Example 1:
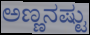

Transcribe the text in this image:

ಅಣ್ಣನಷ್ಟು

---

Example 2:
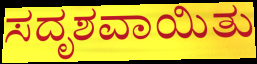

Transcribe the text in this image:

ಸದೃಶವಾಯಿತು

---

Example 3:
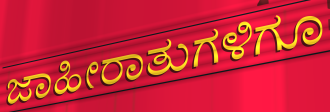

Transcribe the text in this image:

ಜಾಹೀರಾತುಗಳಿಗೂ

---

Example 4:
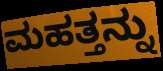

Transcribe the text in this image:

ಮಹತ್ತನ್ನು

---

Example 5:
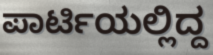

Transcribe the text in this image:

ಪಾರ್ಟಿಯಲ್ಲಿದ್ದ